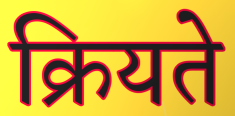
क्रियते